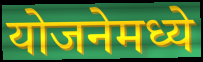
योजनेमध्ये